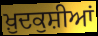
ਖ਼ੁਦਕੁਸ਼ੀਆਂ